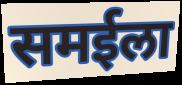
समईला